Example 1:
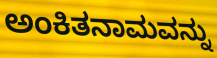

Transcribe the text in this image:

ಅಂಕಿತನಾಮವನ್ನು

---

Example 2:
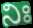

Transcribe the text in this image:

ನಿಃ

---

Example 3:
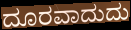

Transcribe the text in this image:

ದೂರವಾದುದು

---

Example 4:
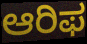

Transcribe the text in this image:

ಆರಿಫ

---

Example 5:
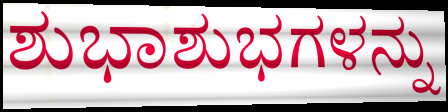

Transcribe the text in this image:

ಶುಭಾಶುಭಗಳನ್ನು